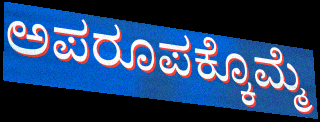
ಅಪರೂಪಕ್ಕೊಮ್ಮೆ